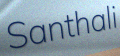
Santhali